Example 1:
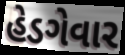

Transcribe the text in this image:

હેડગેવાર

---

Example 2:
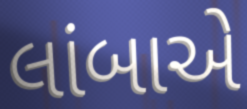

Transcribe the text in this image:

લાંબાએ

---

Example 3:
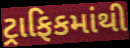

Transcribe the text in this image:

ટ્રાફિકમાંથી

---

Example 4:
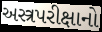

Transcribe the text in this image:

અસ્ત્રપરીક્ષાનો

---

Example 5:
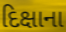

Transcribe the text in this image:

દિક્ષાના